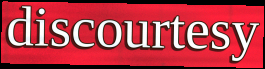
discourtesy